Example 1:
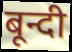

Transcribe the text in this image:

बून्दी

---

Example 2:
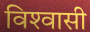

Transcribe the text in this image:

विश्‍वासी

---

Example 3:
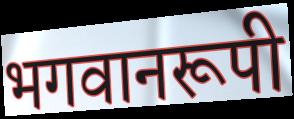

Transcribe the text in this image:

भगवानरूपी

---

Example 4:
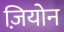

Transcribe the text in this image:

ज़ियोन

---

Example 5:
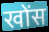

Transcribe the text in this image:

खोंस